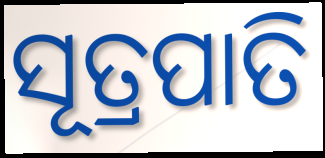
ସୂତ୍ରପାତି